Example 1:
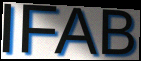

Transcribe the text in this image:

IFAB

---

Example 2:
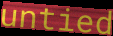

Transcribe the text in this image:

untied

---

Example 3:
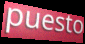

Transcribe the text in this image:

puesto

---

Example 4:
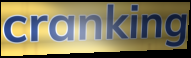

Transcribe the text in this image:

cranking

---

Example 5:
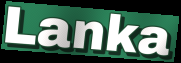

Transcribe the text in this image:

Lanka